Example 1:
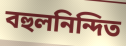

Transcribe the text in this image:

বহুলনিন্দিত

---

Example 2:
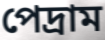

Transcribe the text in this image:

পেদ্রাম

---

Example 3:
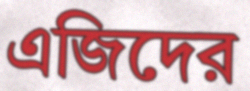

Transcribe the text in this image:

এজিদের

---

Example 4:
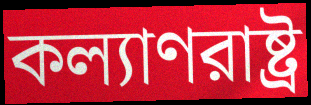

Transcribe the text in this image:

কল্যাণরাষ্ট্র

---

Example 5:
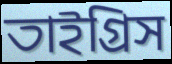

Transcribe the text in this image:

তাইগ্রিস